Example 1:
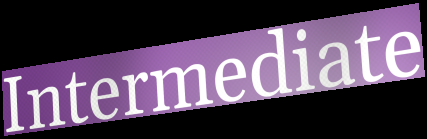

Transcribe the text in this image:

Intermediate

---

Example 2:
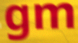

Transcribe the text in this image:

gm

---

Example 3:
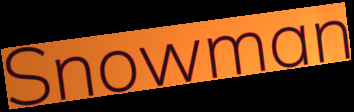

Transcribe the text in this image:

Snowman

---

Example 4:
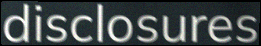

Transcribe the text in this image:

disclosures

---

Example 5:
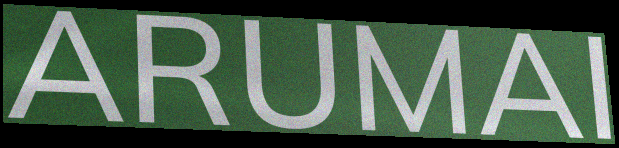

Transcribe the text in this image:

ARUMAI